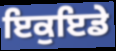
ਇਕੁਇਡੇ